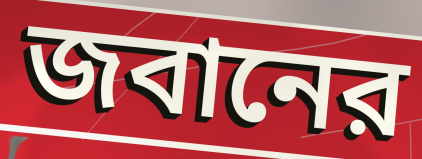
জবানের